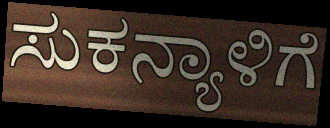
ಸುಕನ್ಯಾಳಿಗೆ